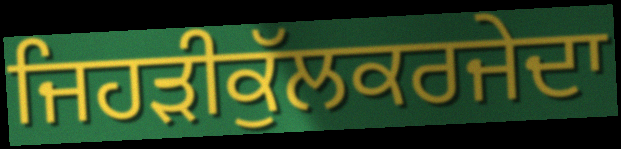
ਜਿਹੜੀਕੁੱਲਕਰਜੇਦਾ